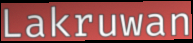
Lakruwan